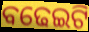
ବଢେଇଟି